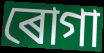
ৰোগা